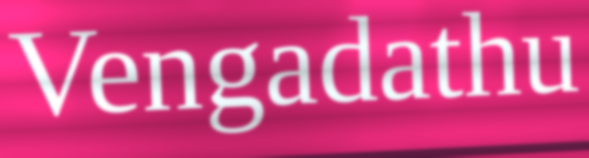
Vengadathu